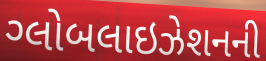
ગ્લોબલાઇઝેશનની